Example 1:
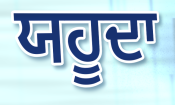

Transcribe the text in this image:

ਯਹੂਦਾ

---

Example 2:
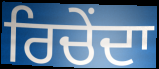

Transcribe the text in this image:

ਰਿਚੇਂਦਾ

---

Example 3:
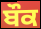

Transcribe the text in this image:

ਬੌਕ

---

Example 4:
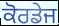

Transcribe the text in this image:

ਕੋਰਡੇਜ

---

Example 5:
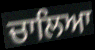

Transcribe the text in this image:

ਚਾਲਿਆ